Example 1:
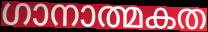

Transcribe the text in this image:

ഗാനാത്മകത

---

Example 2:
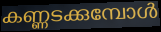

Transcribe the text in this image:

കണ്ണടക്കുമ്പോൾ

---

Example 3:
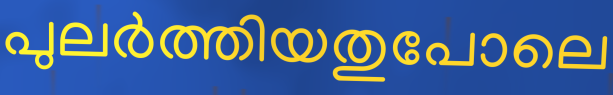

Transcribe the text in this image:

പുലർത്തിയതുപോലെ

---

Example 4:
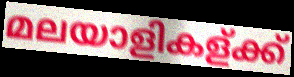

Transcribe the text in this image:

മലയാളികള്ക്ക്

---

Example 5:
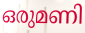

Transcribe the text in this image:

ഒരുമണി